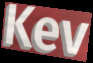
Kev